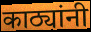
काठ्यांनी